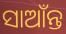
ସାଆଁନ୍ତ